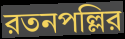
রতনপল্লির